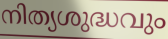
നിത്യശുദ്ധവും